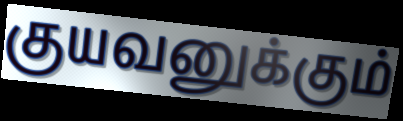
குயவனுக்கும்